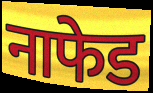
नाफेड